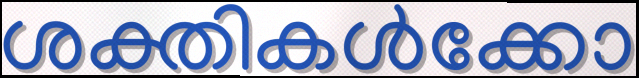
ശക്തികൾക്കോ